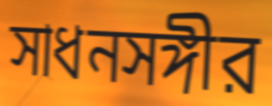
সাধনসঙ্গীর